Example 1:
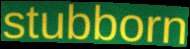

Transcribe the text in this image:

stubborn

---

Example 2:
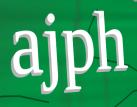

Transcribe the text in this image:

ajph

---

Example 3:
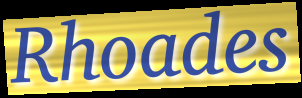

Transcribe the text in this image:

Rhoades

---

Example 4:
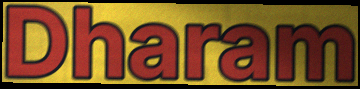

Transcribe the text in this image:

Dharam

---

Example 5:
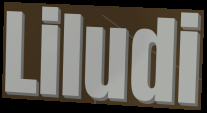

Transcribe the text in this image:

Liludi